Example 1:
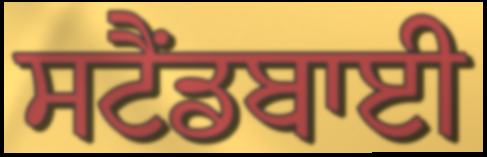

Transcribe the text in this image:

ਸਟੈਂਡਬਾਈ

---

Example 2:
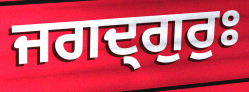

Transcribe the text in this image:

ਜਗਦ੍ਗੁਰੁਃ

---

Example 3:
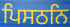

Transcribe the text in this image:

ਪਿਸਠਨਿ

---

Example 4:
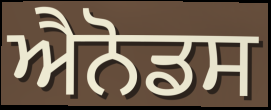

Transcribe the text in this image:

ਐਨੋਡਸ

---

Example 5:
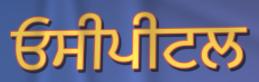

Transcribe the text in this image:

ਓਸੀਪੀਟਲ